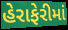
હેરાફેરીમાં